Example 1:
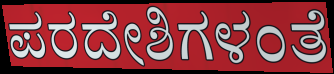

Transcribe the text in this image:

ಪರದೇಶಿಗಳಂತೆ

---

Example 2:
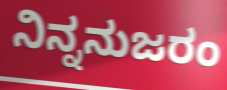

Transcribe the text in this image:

ನಿನ್ನನುಜರಂ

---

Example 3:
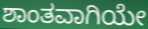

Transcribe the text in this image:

ಶಾಂತವಾಗಿಯೇ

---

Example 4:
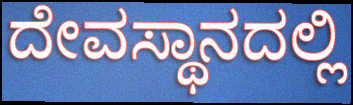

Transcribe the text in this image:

ದೇವಸ್ಥಾನದಲ್ಲಿ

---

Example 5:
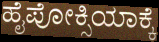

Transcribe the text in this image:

ಹೈಪೋಕ್ಸಿಯಾಕ್ಕೆ